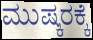
ಮುಷ್ಕರಕ್ಕೆ